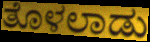
ತೊಳಲಾಡು